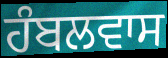
ਹੰਬਲਵਾਸ